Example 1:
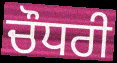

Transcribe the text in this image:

ਚੌਧਰੀ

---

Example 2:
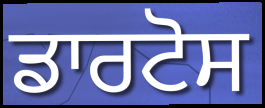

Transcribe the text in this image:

ਡਾਰਟੋਸ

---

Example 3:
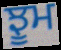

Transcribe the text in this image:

ਝੂਮ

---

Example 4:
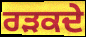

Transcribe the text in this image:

ਰੜਕਦੇ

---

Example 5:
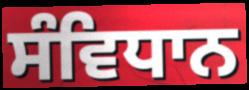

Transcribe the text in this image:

ਸੰਵਿਧਾਨ